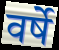
वर्षे